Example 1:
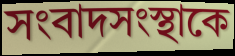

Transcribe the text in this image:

সংবাদসংস্থাকে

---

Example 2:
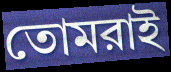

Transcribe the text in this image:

তোমরাই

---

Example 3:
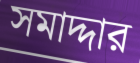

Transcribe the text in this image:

সমাদ্দার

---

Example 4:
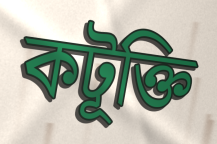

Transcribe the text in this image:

কটূক্তি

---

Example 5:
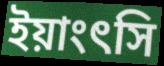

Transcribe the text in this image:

ইয়াংৎসি